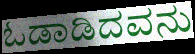
ಓಡಾಡಿದವನು